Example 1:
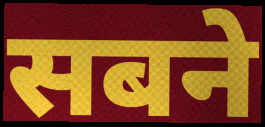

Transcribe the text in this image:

सबने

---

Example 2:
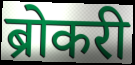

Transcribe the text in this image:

ब्रोकरी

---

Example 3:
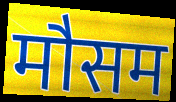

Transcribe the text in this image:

मौसम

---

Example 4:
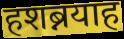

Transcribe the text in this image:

हशब्नयाह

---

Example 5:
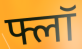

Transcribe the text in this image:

फ्लॉ